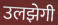
उलझेगी